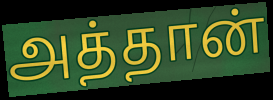
அத்தான்